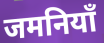
जमनियाँ